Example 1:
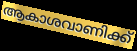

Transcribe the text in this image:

ആകാശവാണിക്ക്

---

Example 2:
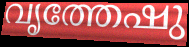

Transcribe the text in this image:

വൃത്തേഷു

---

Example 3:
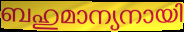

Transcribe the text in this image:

ബഹുമാന്യനായി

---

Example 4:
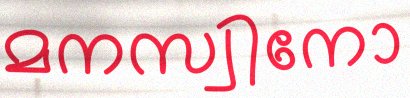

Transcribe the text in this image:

മനസ്വിനോ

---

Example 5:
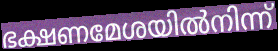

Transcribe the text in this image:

ഭക്ഷണമേശയിൽനിന്ന്